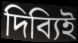
দিব্যিই